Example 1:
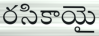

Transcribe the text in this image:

రసికాయై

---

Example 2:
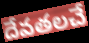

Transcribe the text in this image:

దేవతలచే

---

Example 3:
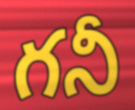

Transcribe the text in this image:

గనీ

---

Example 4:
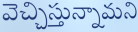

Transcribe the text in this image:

వెచ్చిస్తున్నామని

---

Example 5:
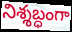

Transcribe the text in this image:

నిశ్శబ్ధంగా